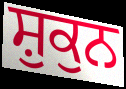
ਸ਼ੁਕੁਨ